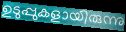
ഉടുപ്പുകളായിരുന്നു